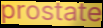
prostate